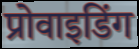
प्रोवाइडिंग